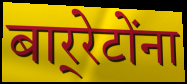
बार्रेटोंना